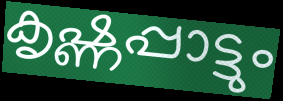
കൃഷ്ണപ്പാട്ടും